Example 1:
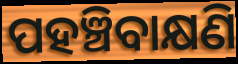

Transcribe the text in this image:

ପହଞ୍ଚିବାକ୍ଷଣି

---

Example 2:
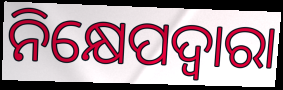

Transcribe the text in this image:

ନିକ୍ଷେପଦ୍ୱାରା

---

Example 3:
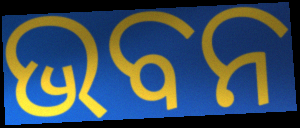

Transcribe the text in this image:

ଭବନ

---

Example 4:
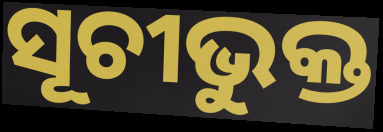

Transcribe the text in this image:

ସୂଚୀଭୁକ୍ତ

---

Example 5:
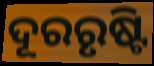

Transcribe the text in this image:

ଦୂରରୃଷ୍ଟି